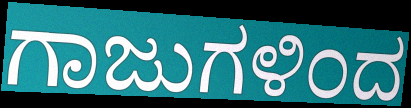
ಗಾಜುಗಳಿಂದ